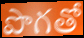
పొగతో